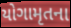
યોગામૃતના